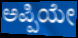
ಅಪ್ಪಿಯೇ